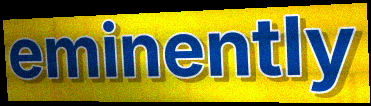
eminently